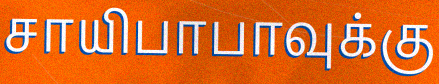
சாயிபாபாவுக்கு